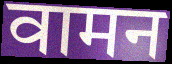
वामन